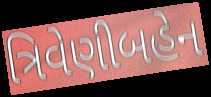
ત્રિવેણીબહેન